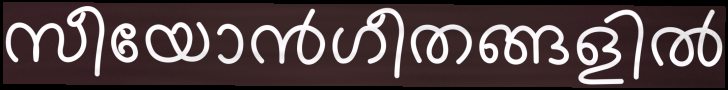
സീയോൻഗീതങ്ങളിൽ